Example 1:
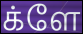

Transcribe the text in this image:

க்ளே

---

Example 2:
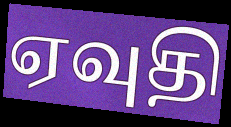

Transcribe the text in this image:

ஏவுதி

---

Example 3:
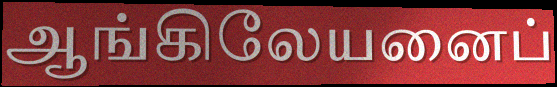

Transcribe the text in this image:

ஆங்கிலேயனைப்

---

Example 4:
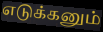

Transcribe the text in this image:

எடுக்கனும்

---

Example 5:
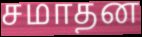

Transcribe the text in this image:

சமாதன